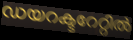
ഡയറക്ടറേറ്റിൽ